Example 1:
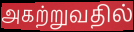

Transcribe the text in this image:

அகற்றுவதில்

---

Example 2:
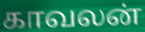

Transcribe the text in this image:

காவலன்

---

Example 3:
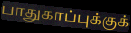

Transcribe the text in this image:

பாதுகாப்புக்குக்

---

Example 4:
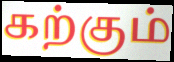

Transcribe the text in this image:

கற்கும்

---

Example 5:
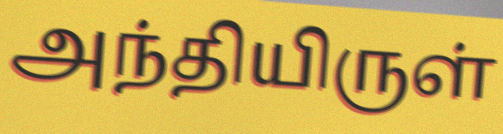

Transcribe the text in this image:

அந்தியிருள்